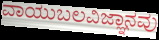
ವಾಯುಬಲವಿಜ್ಞಾನವು